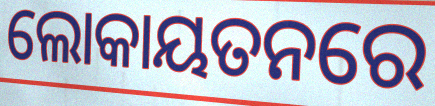
ଲୋକାୟତନରେ